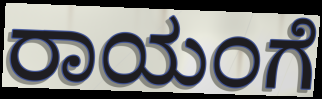
ರಾಯಂಗೆ